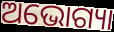
ଅଭୋଗ୍ୟା